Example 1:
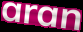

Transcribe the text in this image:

aran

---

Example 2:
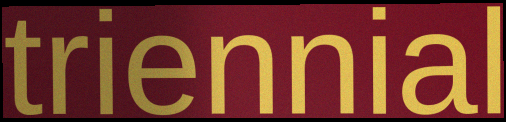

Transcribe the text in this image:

triennial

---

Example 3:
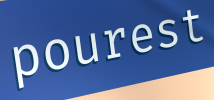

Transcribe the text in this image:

pourest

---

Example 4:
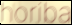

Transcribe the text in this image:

horiba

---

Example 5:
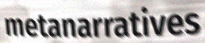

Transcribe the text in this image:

metanarratives